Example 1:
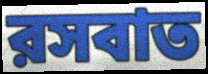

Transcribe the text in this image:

রসবাত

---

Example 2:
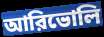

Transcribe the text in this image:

আরিভোলি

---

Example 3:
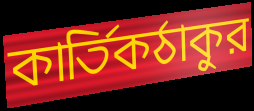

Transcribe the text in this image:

কার্তিকঠাকুর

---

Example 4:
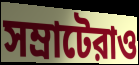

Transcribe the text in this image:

সম্রাটেরাও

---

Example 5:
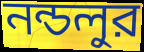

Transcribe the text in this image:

নন্ডলুর